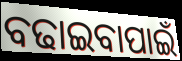
ବଢାଇବାପାଇଁ